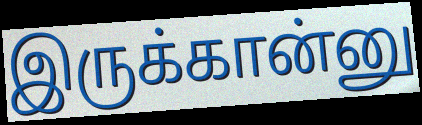
இருக்கான்னு